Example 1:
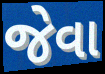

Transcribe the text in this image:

જેવા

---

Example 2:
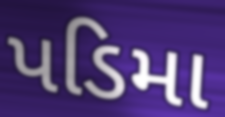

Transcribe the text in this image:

પડિમા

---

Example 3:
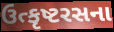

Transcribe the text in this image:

ઉત્કૃષ્ટરસના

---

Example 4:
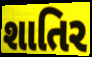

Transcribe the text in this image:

શાતિર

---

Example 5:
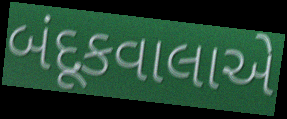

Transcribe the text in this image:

બંદૂકવાલાએ